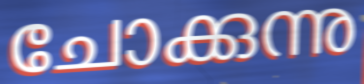
ചോക്കുന്നു